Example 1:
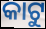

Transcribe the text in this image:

କାଟୁ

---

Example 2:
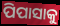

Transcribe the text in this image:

ପିପାସାକୁ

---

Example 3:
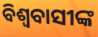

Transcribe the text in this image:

ବିଶ୍ଵବାସୀଙ୍କ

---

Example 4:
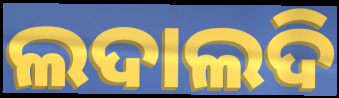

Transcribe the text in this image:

ଲଦାଲଦି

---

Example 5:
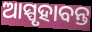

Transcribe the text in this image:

ଆସ୍ପୃହାବନ୍ତ